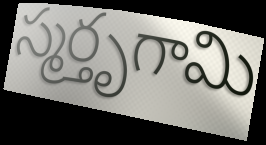
స్మర్తృగామి